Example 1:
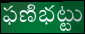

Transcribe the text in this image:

ఫణిభట్టు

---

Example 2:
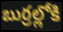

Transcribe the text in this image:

బుర్రల్లోకి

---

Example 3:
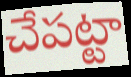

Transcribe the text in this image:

చేపట్టా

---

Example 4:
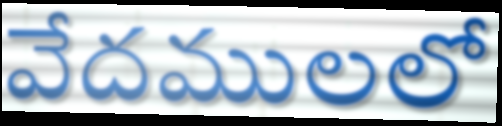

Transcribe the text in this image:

వేదములలో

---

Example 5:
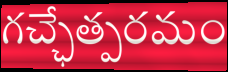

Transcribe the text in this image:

గచ్ఛేత్పరమం